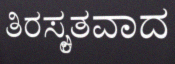
ತಿರಸ್ಕೃತವಾದ